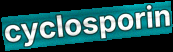
cyclosporin